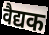
वैद्यक